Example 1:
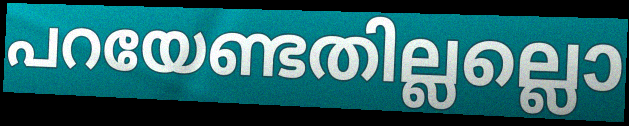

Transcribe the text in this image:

പറയേണ്ടതില്ലല്ലൊ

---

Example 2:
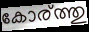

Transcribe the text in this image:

കോര്ത്തു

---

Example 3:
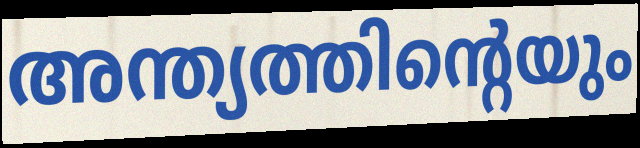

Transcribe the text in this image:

അന്ത്യത്തിന്റെയും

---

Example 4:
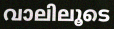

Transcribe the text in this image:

വാലിലൂടെ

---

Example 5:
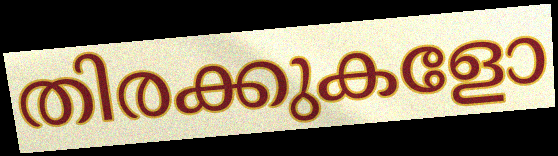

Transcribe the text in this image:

തിരക്കുകളോ